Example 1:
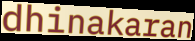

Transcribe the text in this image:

dhinakaran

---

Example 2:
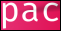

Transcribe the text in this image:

pac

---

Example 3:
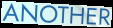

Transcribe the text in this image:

ANOTHER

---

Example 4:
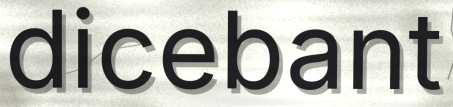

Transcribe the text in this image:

dicebant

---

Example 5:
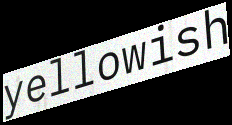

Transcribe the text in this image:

yellowish